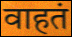
वाहतं